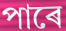
পাৰে